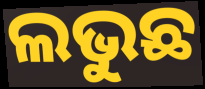
ଲଭୁଛ